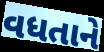
વધતાને